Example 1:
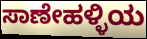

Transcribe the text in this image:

ಸಾಣೇಹಳ್ಳಿಯ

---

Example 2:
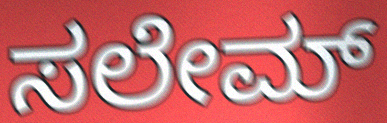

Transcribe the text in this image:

ಸಲೇಮ್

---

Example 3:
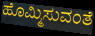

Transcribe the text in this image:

ಹೊಮ್ಮಿಸುವಂತೆ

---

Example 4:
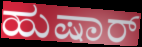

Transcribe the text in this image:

ಹುಷಾರ್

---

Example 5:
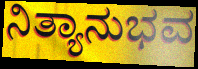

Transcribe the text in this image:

ನಿತ್ಯಾನುಭವ